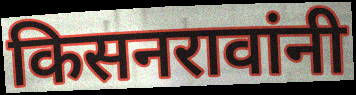
किसनरावांनी